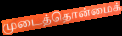
முடைத்தொன்மைக்